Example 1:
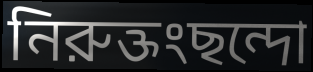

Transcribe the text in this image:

নিরুক্তংছন্দো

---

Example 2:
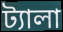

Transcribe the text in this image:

ট্যালা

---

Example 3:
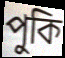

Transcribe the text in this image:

পুকি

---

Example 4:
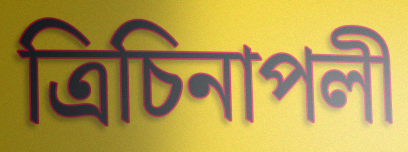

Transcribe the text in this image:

ত্রিচিনাপলী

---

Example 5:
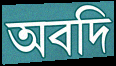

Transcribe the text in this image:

অবদি